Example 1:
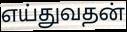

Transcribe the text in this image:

எய்துவதன்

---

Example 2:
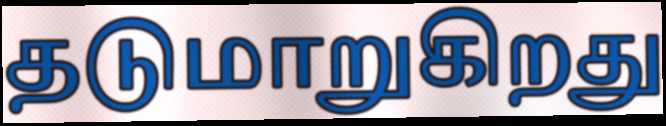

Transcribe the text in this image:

தடுமாறுகிறது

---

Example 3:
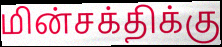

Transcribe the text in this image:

மின்சக்திக்கு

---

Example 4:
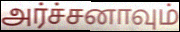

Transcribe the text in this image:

அர்ச்சனாவும்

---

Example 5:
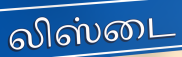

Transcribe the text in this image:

லிஸ்டை